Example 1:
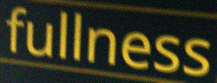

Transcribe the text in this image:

fullness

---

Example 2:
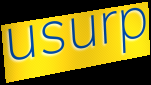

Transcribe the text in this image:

usurp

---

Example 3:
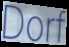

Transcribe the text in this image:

Dorf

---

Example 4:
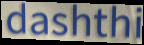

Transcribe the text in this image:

dashthi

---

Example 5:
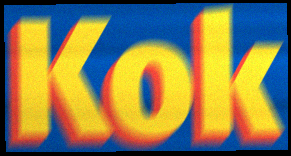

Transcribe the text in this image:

Kok